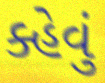
ક્હેવું